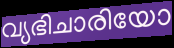
വ്യഭിചാരിയോ